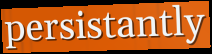
persistantly